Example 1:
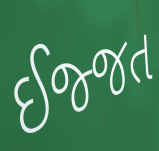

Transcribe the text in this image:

ઈજ્જત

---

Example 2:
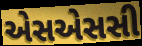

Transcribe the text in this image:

એસએસસી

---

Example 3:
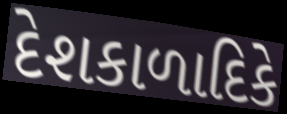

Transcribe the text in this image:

દેશકાળાદિકે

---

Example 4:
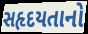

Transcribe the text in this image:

સહૃદયતાનો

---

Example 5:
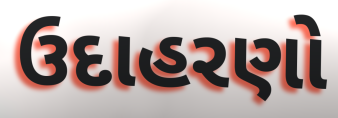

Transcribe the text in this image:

ઉદાહરણો